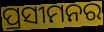
ପ୍ରସୀମନର